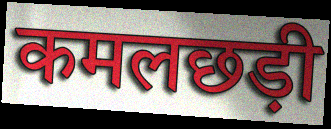
कमलछड़ी